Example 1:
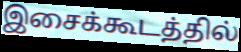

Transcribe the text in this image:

இசைக்கூடத்தில்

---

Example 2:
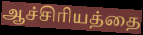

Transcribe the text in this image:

ஆச்சிரியத்தை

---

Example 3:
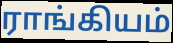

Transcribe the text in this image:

ராங்கியம்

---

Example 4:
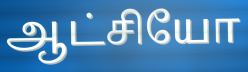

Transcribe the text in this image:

ஆட்சியோ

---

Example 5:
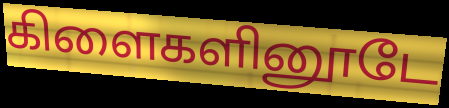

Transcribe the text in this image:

கிளைகளினூடே